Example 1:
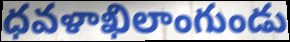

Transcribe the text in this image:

ధవళాఖిలాంగుండు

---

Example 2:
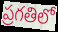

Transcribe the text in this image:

ప్రగతిలో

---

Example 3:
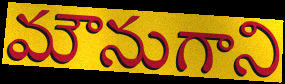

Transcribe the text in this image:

మౌనుగాని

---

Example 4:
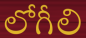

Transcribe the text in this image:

లోగీలి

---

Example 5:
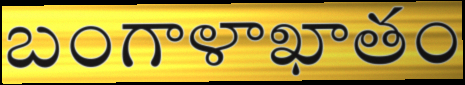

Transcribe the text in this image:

బంగాళాఖాతం